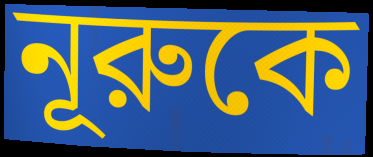
নূরুকে